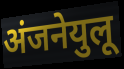
अंजनेयुलू